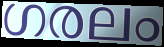
ഗരലം